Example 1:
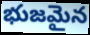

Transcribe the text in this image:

భుజమైన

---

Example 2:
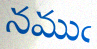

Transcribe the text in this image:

నముఁ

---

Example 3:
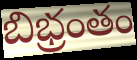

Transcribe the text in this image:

బిభ్రంతం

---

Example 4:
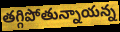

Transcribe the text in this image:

తగ్గిపోతున్నాయన్న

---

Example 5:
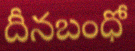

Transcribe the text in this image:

దీనబంధో